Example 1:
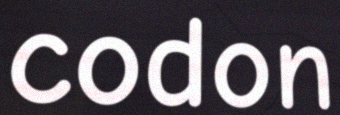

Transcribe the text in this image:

codon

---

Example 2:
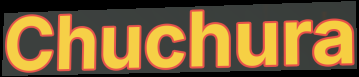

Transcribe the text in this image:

Chuchura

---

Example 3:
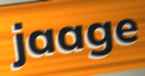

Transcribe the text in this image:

jaage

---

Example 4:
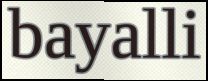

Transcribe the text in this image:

bayalli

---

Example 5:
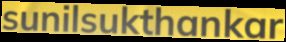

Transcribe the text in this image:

sunilsukthankar